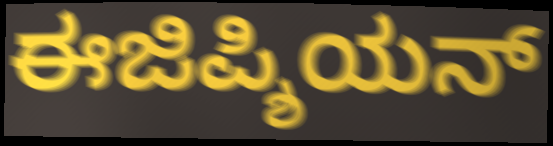
ಈಜಿಪ್ಶಿಯನ್